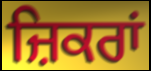
ਜ਼ਿਕਰਾਂ